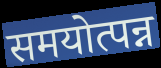
समयोत्पन्न